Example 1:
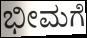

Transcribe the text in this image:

ಭೀಮಗೆ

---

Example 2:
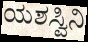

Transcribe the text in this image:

ಯಶಸ್ವಿನಿ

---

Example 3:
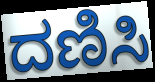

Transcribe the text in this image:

ದಣಿಸಿ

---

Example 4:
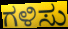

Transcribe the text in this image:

ಗಳಿಸು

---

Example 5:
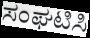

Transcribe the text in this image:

ಸಂಘಟಿಸಿ